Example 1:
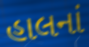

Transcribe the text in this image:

હાલનાં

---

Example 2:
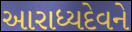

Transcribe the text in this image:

આરાધ્યદેવને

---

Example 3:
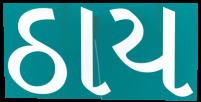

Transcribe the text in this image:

ઠાય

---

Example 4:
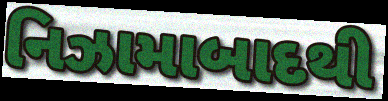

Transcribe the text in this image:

નિઝામાબાદથી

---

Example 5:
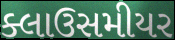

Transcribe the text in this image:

ક્લાઉસમીયર